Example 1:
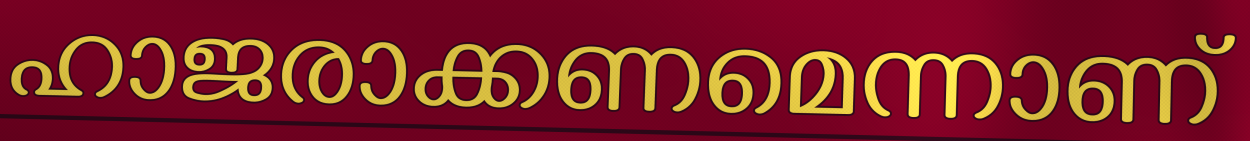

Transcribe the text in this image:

ഹാജരാക്കണമെന്നാണ്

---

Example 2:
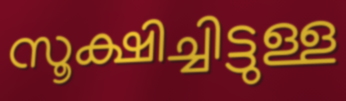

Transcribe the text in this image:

സൂക്ഷിച്ചിട്ടുള്ള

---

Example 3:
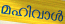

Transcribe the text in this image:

മഹിവാൾ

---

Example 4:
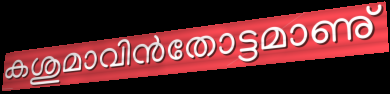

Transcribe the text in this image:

കശുമാവിൻതോട്ടമാണു്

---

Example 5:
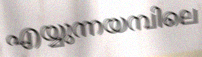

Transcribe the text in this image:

എയ്യുന്നയമ്പിലെ